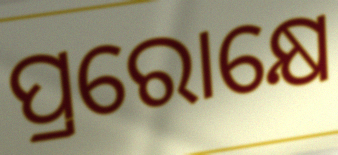
ପ୍ରରୋକ୍ଷେ